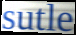
sutle